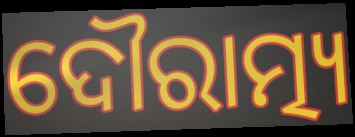
ଦୌରାତ୍ମ୍ୟ